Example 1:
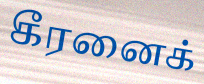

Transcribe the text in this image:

கீரனைக்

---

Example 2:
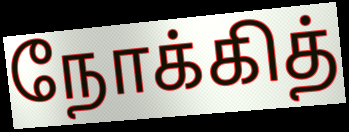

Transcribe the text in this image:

நோக்கித்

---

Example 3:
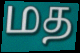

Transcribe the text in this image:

மத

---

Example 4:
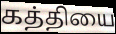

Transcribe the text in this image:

கத்தியை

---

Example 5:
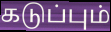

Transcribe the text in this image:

கடுப்பும்